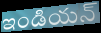
ఇండియన్